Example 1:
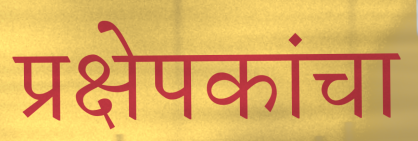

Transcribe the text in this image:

प्रक्षेपकांचा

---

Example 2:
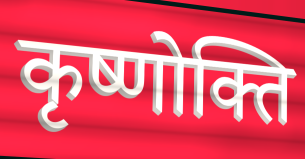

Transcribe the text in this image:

कृष्णोक्ति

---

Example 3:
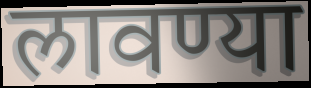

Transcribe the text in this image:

लावण्या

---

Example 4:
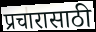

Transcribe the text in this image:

प्रचारासाठी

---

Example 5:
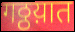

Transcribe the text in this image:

गठ्ठय़ात